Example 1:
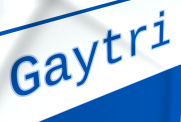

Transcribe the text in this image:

Gaytri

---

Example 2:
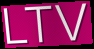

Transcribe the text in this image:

LTV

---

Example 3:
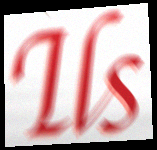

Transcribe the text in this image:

Ils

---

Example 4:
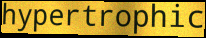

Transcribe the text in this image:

hypertrophic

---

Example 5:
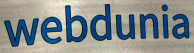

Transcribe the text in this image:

webdunia